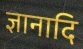
ज्ञानादि